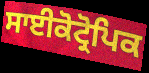
ਸਾਈਕੋਟ੍ਰੋਪਿਕ